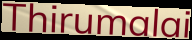
Thirumalai